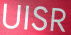
UISR